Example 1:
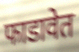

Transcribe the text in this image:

फाडावेत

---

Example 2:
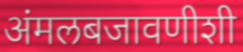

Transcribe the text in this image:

अंमलबजावणीशी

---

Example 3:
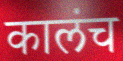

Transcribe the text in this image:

कालंच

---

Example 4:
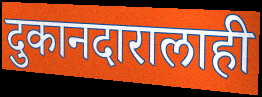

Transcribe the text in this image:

दुकानदारालाही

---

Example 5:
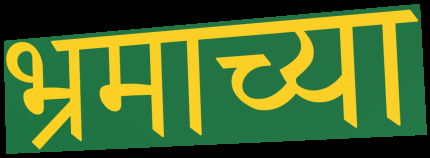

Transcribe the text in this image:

भ्रमाच्या